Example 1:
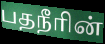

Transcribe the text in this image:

பதநீரின்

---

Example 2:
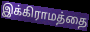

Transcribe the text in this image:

இக்கிராமத்தை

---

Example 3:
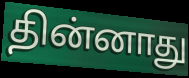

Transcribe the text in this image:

தின்னாது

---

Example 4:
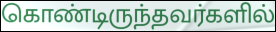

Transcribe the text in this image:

கொண்டிருந்தவர்களில்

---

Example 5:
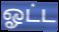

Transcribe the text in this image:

ஓட்ட